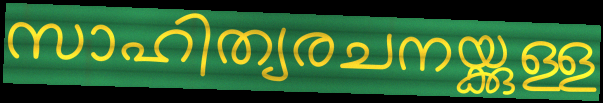
സാഹിത്യരചനയ്ക്കുള്ള